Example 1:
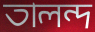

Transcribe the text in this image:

তালন্দ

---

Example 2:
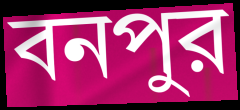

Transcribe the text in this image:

বনপুর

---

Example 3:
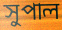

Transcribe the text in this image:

সুপাল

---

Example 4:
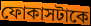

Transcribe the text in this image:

ফোকাসটাকে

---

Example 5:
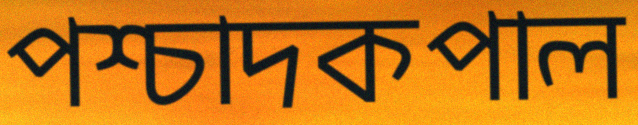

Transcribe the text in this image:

পশ্চাদকপাল